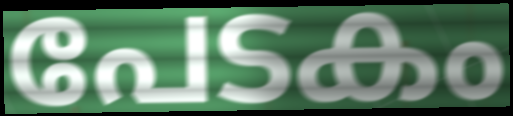
പേടകം